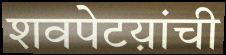
शवपेटय़ांची